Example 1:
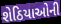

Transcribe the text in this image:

શેઠિયાઓની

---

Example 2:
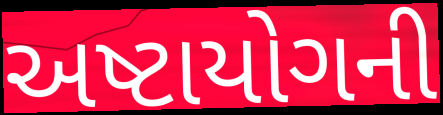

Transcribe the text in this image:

અષ્ટાયોગની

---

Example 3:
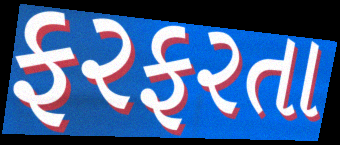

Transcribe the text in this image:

ફરફરતા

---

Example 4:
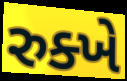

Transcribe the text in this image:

રુક્ખે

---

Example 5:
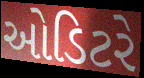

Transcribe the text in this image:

ઓડિટરે